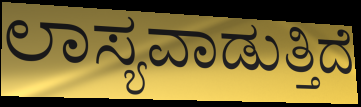
ಲಾಸ್ಯವಾಡುತ್ತಿದೆ